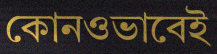
কোনওভাবেই